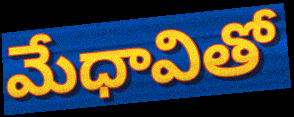
మేధావితో